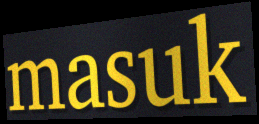
masuk